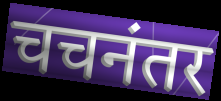
चचनंतर